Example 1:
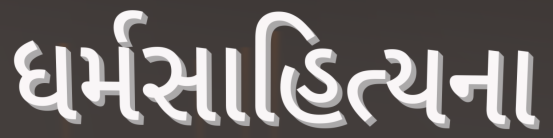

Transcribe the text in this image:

ધર્મસાહિત્યના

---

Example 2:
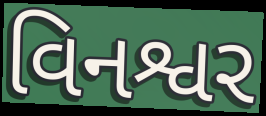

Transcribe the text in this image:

વિનશ્વર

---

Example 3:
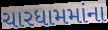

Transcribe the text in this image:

ચારધામમાંના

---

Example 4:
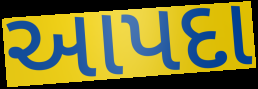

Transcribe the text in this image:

આપદા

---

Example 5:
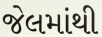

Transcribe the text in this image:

જેલમાંથી